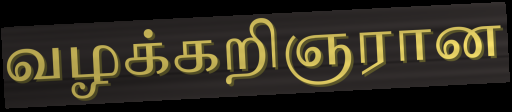
வழக்கறிஞரான